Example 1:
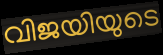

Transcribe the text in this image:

വിജയിയുടെ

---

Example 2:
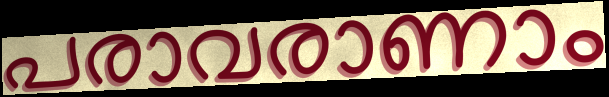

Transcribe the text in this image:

പരാവരാണാം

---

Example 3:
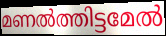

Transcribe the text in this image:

മണൽത്തിട്ടമേൽ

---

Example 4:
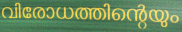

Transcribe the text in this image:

വിരോധത്തിന്റെയും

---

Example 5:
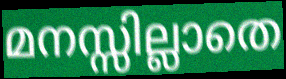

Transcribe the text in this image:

മനസ്സില്ലാതെ